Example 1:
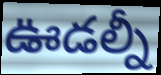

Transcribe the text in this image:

ఊడల్నీ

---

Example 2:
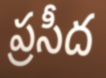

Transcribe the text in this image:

ప్రసీద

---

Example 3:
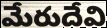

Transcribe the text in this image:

మేరుదేవి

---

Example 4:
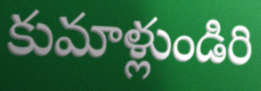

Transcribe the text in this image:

కుమాళ్లుండిరి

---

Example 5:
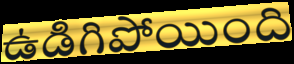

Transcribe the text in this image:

ఉడిగిపోయింది